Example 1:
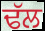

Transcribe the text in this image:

ਢੱਲ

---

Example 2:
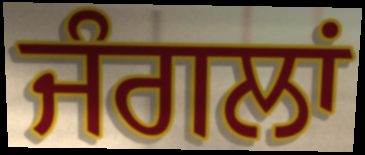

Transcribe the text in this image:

ਜੰਗਲਾਂ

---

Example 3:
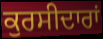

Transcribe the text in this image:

ਕੁਰਸੀਦਾਰਾਂ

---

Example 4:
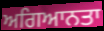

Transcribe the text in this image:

ਅਗਿਆਨਤਾ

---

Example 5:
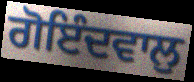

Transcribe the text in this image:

ਗੋਇੰਦਵਾਲੁ